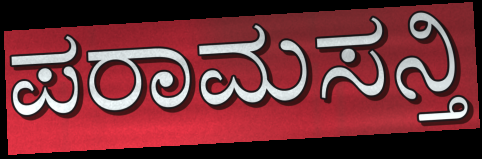
ಪರಾಮಸನ್ತಿ